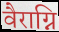
वैराग्नि